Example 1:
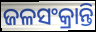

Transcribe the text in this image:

ଜଳସଂକ୍ରାନ୍ତି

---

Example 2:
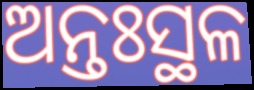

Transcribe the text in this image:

ଅନ୍ତଃସ୍ଥଳ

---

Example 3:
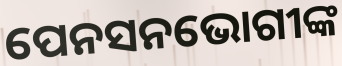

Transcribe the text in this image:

ପେନସନଭୋଗୀଙ୍କ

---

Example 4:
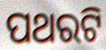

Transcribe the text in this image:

ପଥରଟି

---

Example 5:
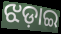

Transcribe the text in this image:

ଝଡ଼ାଇ